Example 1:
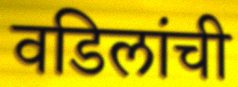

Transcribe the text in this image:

वडिलांची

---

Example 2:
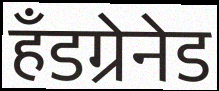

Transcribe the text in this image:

हॅंडग्रेनेड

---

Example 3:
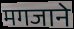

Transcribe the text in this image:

मगजाने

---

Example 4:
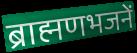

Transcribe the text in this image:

ब्राह्मणभजनें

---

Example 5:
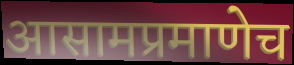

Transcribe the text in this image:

आसामप्रमाणेच